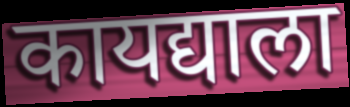
कायद्याला